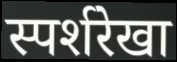
स्पर्शरेखा